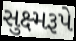
સુક્ષ્મરૂપે